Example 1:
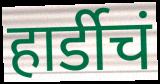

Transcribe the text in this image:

हार्डीचं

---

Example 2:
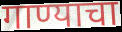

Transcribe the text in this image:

गाण्याचा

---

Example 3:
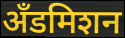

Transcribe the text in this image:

अँडमिशन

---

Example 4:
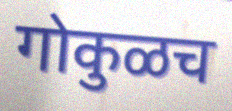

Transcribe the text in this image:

गोकुळच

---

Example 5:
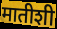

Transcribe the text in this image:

मातीशी